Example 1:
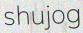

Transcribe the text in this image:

shujog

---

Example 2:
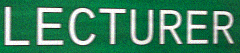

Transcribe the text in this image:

LECTURER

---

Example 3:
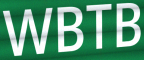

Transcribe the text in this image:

WBTB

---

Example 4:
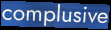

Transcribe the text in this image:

complusive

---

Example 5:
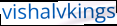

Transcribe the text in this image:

vishalvkings